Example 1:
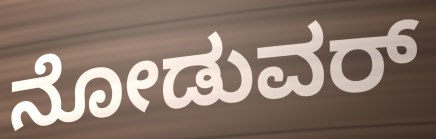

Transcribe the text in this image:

ನೋಡುವರ್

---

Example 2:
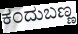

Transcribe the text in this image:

ಕಂದುಬಣ್ಣ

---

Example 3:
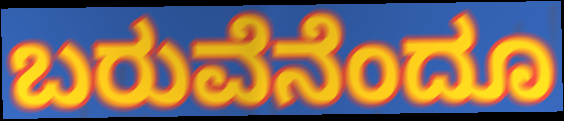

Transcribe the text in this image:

ಬರುವೆನೆಂದೂ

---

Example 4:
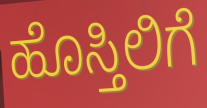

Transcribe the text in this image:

ಹೊಸ್ತಿಲಿಗೆ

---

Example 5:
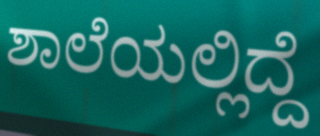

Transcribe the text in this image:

ಶಾಲೆಯಲ್ಲಿದ್ದೆ